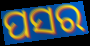
ପସର